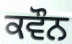
ਕਵੌਨ